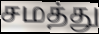
சமத்து